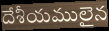
దేశీయములైన